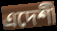
এদেশী